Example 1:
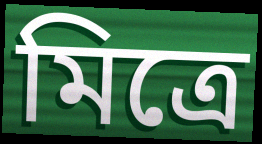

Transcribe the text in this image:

মিত্রে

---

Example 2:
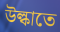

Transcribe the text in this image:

উল্কাতে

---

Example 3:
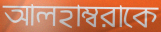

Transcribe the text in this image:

আলহাম্বরাকে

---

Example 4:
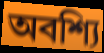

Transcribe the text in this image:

অবশ্যি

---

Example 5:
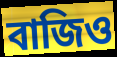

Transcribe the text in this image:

বাজিও